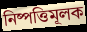
নিষ্পত্তিমূলক